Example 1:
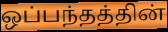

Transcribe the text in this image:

ஒப்பந்தத்தின்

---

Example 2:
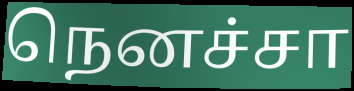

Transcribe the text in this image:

நெனச்சா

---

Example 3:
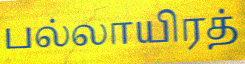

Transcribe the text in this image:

பல்லாயிரத்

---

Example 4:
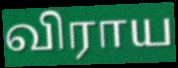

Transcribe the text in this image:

விராய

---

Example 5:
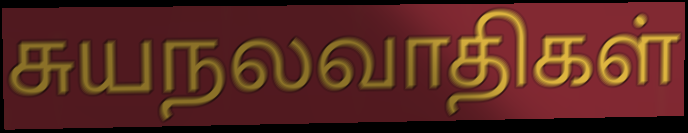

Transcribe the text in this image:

சுயநலவாதிகள்